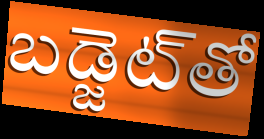
బడ్జెట్‌తో